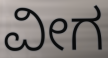
ವೀಗ